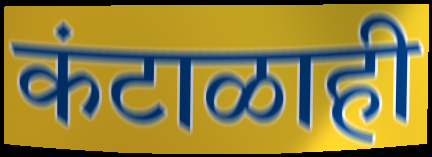
कंटाळाही